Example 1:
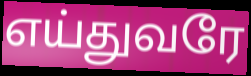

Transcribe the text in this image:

எய்துவரே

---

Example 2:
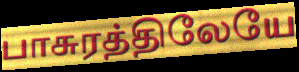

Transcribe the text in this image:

பாசுரத்திலேயே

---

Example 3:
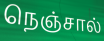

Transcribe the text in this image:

நெஞ்சால்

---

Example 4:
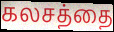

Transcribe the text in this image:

கலசத்தை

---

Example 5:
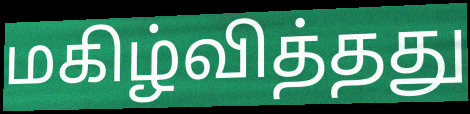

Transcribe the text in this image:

மகிழ்வித்தது